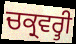
ਚਕ੍ਰਵਰ੍ਤੀ